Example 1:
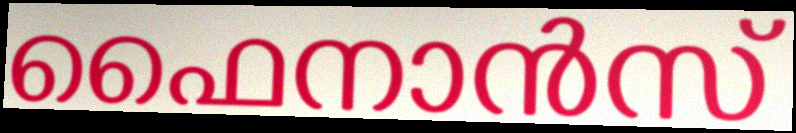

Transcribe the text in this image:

ഫൈനാൻസ്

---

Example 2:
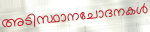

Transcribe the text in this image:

അടിസ്ഥാനചോദനകൾ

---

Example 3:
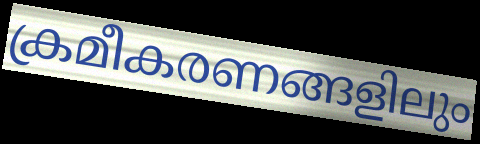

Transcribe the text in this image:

ക്രമീകരണങ്ങളിലും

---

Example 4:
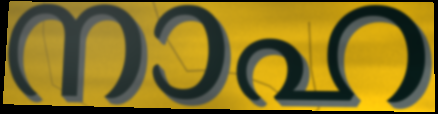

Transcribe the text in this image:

നാഹ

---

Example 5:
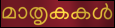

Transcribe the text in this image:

മാതൃകകൾ